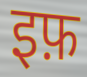
इफ़